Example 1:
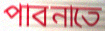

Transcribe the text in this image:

পাবনাতে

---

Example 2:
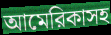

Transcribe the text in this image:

আমেরিকাসহ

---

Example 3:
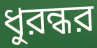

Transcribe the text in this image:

ধুরন্ধর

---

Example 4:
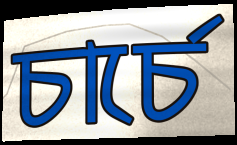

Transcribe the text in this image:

চার্চে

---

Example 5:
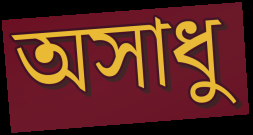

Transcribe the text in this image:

অসাধু